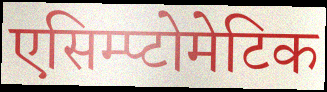
एसिम्प्टोमेटिक